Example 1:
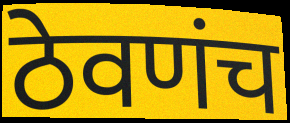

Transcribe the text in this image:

ठेवणंच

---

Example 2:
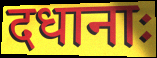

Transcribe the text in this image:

दधानाः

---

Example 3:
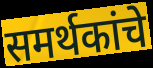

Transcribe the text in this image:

समर्थकांचे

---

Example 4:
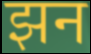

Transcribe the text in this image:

झन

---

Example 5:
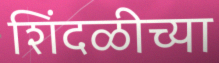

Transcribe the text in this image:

शिंदळीच्या